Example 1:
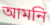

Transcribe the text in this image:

আমনি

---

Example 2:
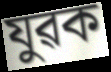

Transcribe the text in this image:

যুৱক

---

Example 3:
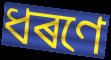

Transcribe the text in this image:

ধৰণে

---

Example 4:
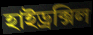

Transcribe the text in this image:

হাইড্ৰক্সিল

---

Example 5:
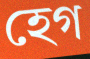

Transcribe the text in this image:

হেগ